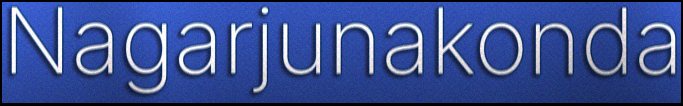
Nagarjunakonda